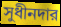
সুধীনদার